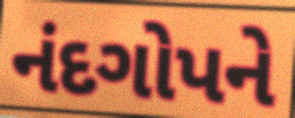
નંદગોપને